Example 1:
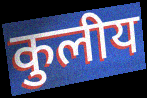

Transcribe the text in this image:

कुलीय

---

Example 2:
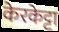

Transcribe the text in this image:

केरकेट्टा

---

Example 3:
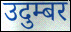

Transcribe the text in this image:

उदुम्बर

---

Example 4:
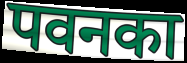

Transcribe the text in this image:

पवनका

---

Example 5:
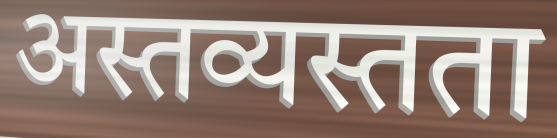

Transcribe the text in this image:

अस्तव्यस्तता